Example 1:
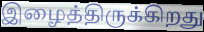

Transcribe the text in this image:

இழைத்திருக்கிறது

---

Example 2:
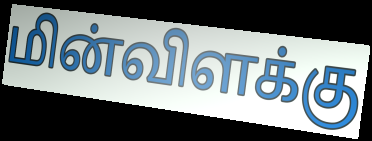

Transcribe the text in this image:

மின்விளக்கு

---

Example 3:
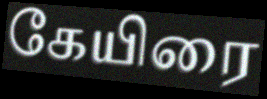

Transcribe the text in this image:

கேயிரை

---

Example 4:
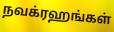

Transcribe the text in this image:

நவக்ரஹங்கள்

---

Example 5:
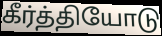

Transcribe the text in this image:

கீர்த்தியோடு